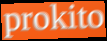
prokito